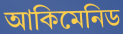
আকিমেনিড